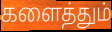
களைத்தும்